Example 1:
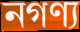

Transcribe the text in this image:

নগণ্য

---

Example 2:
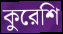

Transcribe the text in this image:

কুরেশি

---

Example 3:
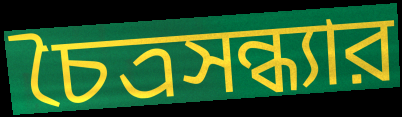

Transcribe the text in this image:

চৈত্রসন্ধ্যার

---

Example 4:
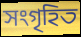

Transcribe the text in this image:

সংগৃহিত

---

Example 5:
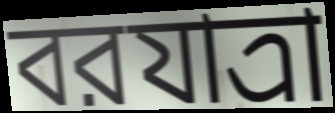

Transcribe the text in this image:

বরযাত্রা